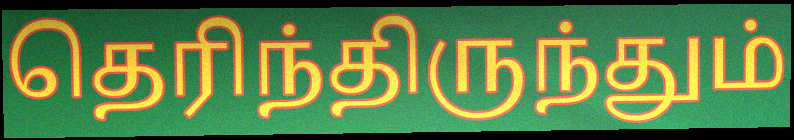
தெரிந்திருந்தும்